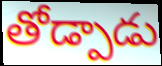
తోడ్పాడు